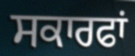
ਸਕਾਰਫਾਂ